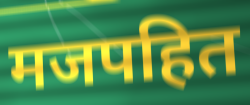
मजपहित